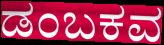
ಡಂಬಕವ